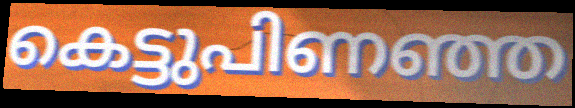
കെട്ടുപിണഞ്ഞ